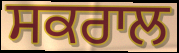
ਸਕਰਾਲ